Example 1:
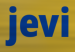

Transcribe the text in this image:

jevi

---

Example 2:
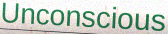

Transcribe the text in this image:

Unconscious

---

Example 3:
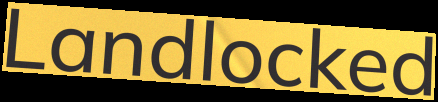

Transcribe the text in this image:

Landlocked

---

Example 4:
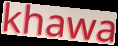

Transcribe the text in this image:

khawa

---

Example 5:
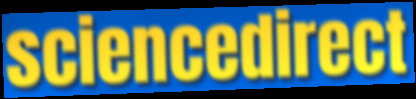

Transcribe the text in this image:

sciencedirect